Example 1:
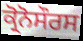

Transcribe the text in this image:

ਕ੍ਰੋਨੋਸੌਰਸ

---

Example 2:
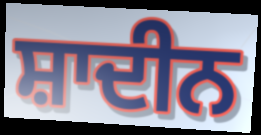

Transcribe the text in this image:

ਸ਼ਾਦੀਨ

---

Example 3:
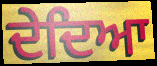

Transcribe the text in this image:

ਦੇਦਿਆ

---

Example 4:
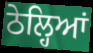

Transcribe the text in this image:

ਠੇਲ੍ਹਿਆਂ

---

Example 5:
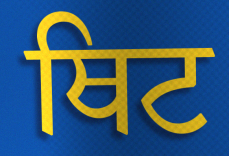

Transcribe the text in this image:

ਥਿਟ